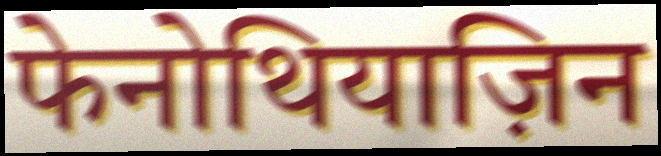
फेनोथियाज़िन